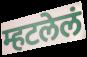
म्हटलेलं